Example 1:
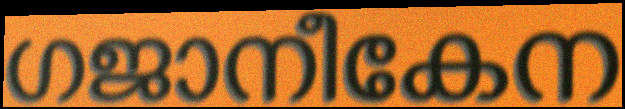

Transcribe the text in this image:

ഗജാനീകേന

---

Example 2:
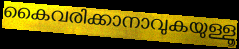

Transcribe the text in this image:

കൈവരിക്കാനാവുകയുള്ളൂ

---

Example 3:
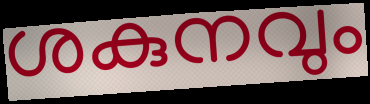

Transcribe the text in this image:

ശകുനവും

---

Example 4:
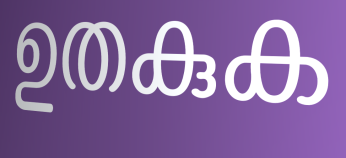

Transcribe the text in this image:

ഉതകുക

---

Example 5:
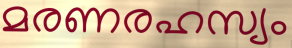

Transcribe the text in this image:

മരണരഹസ്യം